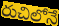
రుచిలోనే